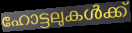
ഹോട്ടലുകൾക്ക്